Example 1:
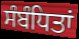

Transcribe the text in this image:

ਸੰਬੰਧਿਤਾਂ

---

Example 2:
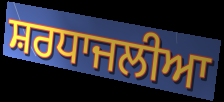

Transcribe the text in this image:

ਸ਼ਰਧਾਜਲੀਆ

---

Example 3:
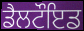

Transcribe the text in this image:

ਡੈਲਟੌਇਡ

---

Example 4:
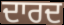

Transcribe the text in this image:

ਦਾਰਦ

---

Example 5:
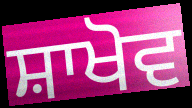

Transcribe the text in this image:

ਸ਼ਾਖੋਵ